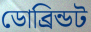
ডোব্রিন্ডট